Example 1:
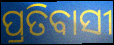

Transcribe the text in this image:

ପ୍ରତିବାସୀ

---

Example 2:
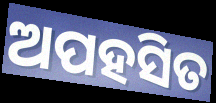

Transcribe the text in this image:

ଅପହସିତ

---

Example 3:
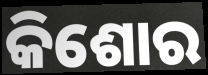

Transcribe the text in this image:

କିଶୋର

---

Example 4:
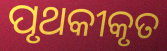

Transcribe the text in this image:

ପୃଥକୀକୃତ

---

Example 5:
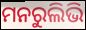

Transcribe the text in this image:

ମନରୁଲିଭି